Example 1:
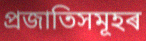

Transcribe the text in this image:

প্ৰজাতিসমূহৰ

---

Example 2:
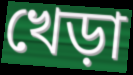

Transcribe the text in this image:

খেড়া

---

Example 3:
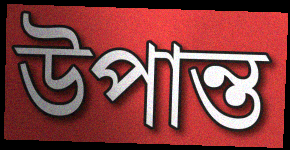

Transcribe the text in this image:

উপান্ত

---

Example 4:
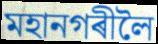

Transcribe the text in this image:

মহানগৰীলৈ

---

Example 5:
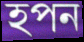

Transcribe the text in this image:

হপন